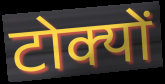
टोक्यों